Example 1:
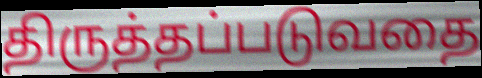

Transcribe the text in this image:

திருத்தப்படுவதை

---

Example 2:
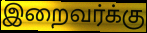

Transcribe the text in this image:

இறைவர்க்கு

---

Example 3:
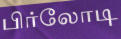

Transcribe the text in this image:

பிர்லோடி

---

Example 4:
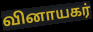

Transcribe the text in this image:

வினாயகர்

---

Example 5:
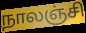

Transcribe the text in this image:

நாலஞ்சி